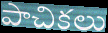
పాచికలు